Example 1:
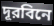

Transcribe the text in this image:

দূরবিনে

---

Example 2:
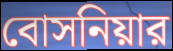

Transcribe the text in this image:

বোসনিয়ার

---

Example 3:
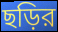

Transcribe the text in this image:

ছড়ির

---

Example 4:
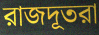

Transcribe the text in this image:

রাজদূতরা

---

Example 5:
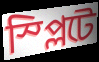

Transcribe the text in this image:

স্প্লিটে